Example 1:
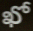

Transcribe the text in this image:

ఖో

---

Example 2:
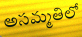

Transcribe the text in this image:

అసమ్మతిలో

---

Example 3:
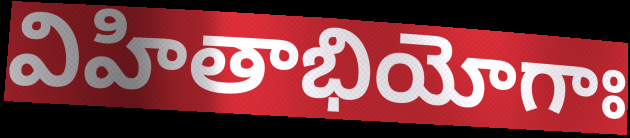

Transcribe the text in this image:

విహితాభియోగాః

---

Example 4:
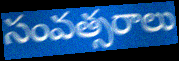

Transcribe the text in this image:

సంవత్సరాలు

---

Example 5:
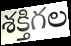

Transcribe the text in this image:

శక్తిగల